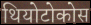
थियोटोकोस